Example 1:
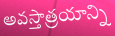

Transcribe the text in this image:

అవస్తాత్రయాన్ని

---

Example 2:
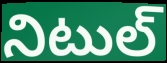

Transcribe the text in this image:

నిటుల్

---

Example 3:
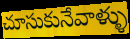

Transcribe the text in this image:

చూసుకునేవాళ్ళు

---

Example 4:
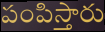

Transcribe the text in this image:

పంపిస్తారు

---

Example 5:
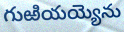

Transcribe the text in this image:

గుఱియయ్యెను